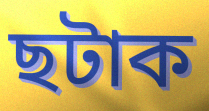
ছটাক